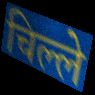
चिल्ले